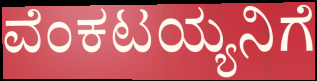
ವೆಂಕಟಯ್ಯನಿಗೆ